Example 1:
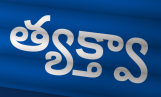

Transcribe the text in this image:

త్యక్త్వా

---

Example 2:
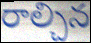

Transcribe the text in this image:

రాల్చిన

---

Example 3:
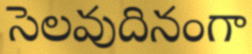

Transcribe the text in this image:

సెలవుదినంగా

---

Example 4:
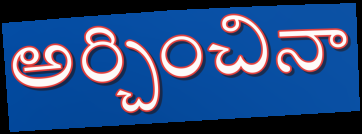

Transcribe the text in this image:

అర్చించినా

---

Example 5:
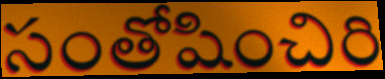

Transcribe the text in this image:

సంతోషించిరి